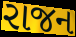
રાજન